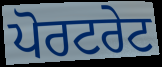
ਪੋਰਟਰੇਟ